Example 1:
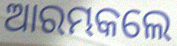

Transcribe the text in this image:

ଆରମ୍ଭକଲେ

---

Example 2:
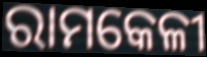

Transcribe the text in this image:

ରାମକେଳୀ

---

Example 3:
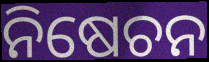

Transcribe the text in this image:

ନିଷେଚନ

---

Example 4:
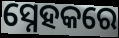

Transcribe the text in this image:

ସ୍ନେହକରେ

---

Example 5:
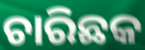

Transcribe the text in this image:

ଚାରିଛକ